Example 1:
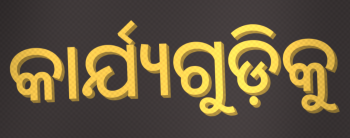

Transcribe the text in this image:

କାର୍ଯ୍ୟଗୁଡ଼ିକୁ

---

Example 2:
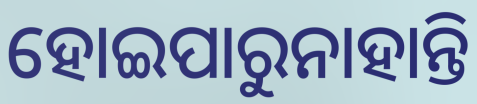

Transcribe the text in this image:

ହୋଇପାରୁନାହାନ୍ତି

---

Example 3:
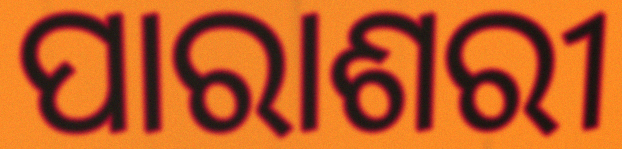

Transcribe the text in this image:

ପାରାଶରୀ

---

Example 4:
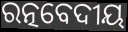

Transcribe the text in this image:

ରତ୍ନବେଦୀୟ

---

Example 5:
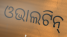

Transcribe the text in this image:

ଓଭାଲଟିନ୍